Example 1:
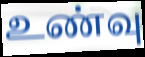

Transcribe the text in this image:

உண்வு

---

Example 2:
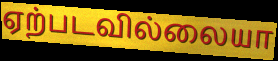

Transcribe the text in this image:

ஏற்படவில்லையா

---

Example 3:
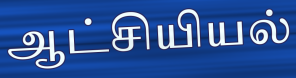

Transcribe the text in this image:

ஆட்சியியல்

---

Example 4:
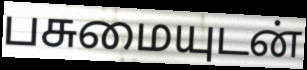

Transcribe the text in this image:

பசுமையுடன்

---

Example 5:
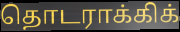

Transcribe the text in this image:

தொடராக்கிக்